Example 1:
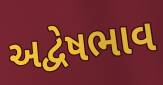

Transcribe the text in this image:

અદ્વેષભાવ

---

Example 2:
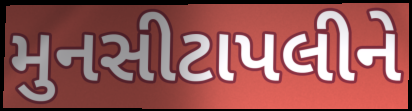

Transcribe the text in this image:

મુનસીટાપલીને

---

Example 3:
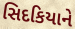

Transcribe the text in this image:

સિદકિયાને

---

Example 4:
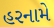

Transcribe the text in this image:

હરનામે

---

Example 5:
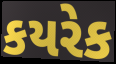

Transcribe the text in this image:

કયરેક